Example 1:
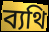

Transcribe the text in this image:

ব্যথি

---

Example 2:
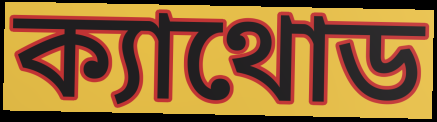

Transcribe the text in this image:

ক্যাথোড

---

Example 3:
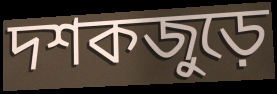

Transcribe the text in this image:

দশকজুড়ে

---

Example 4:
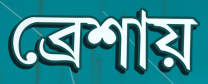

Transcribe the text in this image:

ব্রেশায়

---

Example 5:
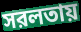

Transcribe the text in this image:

সরলতায়